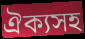
ঐক্যসহ